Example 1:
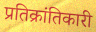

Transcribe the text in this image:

प्रतिक्रांतिकारी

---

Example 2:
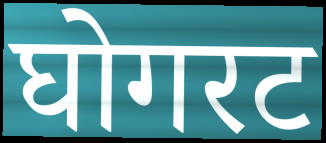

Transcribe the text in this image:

घोगरट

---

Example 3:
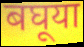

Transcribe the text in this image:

बघूया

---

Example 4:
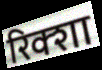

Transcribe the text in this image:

रिक्शा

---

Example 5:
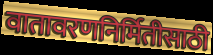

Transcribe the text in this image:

वातावरणनिर्मितीसाठी